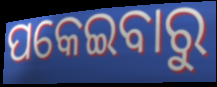
ପକେଇବାରୁ